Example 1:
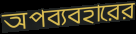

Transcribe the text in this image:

অপব্যবহারের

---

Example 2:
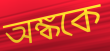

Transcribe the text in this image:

অঙ্ককে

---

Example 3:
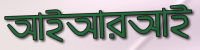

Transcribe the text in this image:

আইআরআই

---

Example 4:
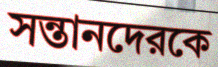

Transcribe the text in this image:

সন্তানদেরকে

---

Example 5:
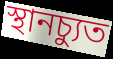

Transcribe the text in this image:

স্থানচ্যুত